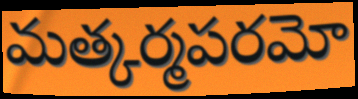
మత్కర్మపరమో